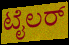
ಟೈಲರ್